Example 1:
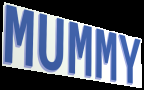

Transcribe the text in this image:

MUMMY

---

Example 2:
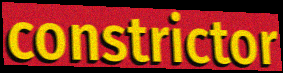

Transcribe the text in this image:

constrictor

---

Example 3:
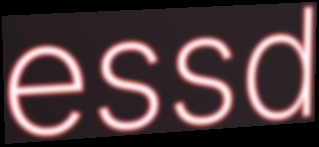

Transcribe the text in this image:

essd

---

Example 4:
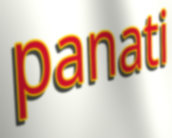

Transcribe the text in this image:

panati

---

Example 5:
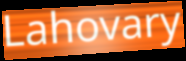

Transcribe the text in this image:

Lahovary